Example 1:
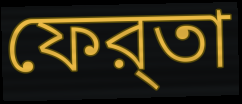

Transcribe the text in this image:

ফের্‌তা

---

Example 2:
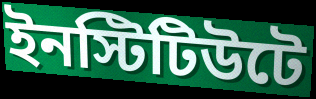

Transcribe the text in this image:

ইনস্টিটিউটে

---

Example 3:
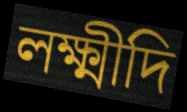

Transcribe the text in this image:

লক্ষ্মীদি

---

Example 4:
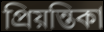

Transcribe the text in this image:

প্রিয়ন্তিকা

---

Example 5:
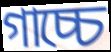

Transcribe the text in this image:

গাচ্চে